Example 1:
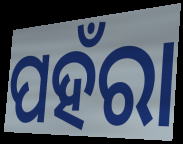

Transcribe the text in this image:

ପହଁରା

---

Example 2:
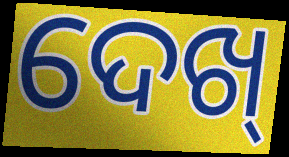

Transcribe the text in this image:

ଦେଖ୍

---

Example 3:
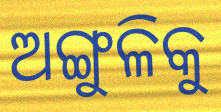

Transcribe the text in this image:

ଅଙ୍ଗୁଳିକୁ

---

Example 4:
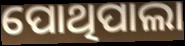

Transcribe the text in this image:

ପୋଥିପାଲା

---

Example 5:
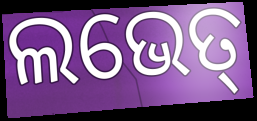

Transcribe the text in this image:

ଲଭେତ୍